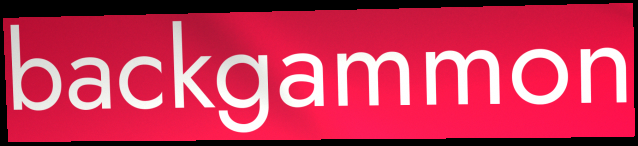
backgammon